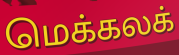
மெக்கலக்